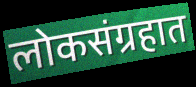
लोकसंग्रहात